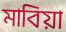
মাবিয়া